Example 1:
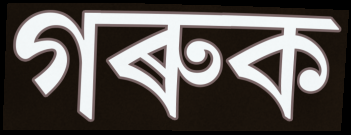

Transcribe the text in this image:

গৰুক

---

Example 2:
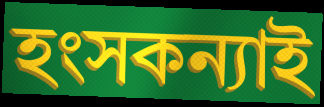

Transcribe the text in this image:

হংসকন্যাই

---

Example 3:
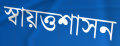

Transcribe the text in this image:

স্বায়ত্তশাসন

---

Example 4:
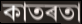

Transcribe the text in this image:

কাতৰতা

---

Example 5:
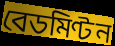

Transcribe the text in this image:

বেডমিণ্টন